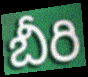
బీరి